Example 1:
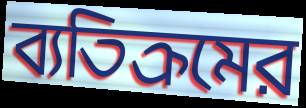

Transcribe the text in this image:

ব্যতিক্রমের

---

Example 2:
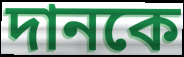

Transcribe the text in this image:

দানকে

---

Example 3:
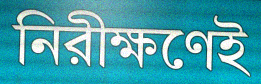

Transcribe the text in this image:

নিরীক্ষণেই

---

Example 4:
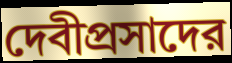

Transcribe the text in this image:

দেবীপ্রসাদের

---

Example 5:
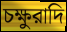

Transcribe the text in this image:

চক্ষুরাদি